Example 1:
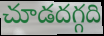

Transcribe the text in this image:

చూడదగ్గది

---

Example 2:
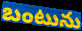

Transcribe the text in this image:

బంటును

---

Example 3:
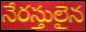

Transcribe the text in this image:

నేరస్తులైన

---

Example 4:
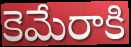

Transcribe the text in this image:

కెమేరాకి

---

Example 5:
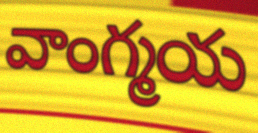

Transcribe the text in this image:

వాంగ్మయ